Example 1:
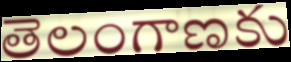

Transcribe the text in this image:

తెలంగాణకు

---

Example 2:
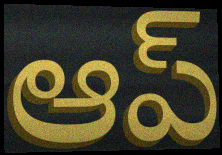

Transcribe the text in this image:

ఆప్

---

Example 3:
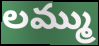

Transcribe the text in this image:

లమ్ము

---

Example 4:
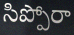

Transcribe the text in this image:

సిప్పోరా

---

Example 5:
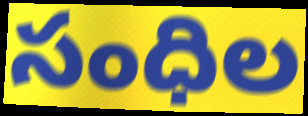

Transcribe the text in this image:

సంధిల